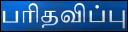
பரிதவிப்பு